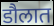
डौलात